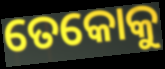
ତେକୋକୁ